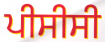
ਪੀਸੀਸੀ